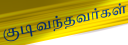
குடிவந்தவர்கள்